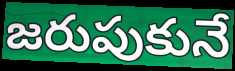
జరుపుకునే